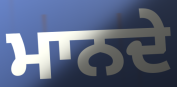
ਮਾਨਦੇ